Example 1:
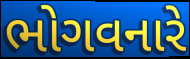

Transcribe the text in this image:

ભોગવનારે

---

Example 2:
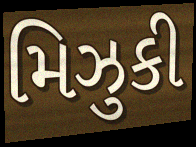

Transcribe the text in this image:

મિઝુકી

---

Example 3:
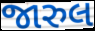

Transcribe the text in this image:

જારુલ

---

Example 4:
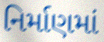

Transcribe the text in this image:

નિર્માણમાં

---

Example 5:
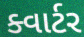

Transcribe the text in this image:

ક્વાર્ટર